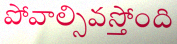
పోవాల్సివస్తోంది